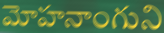
మోహనాంగుని